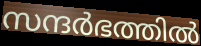
സന്ദർഭത്തിൽ